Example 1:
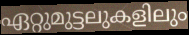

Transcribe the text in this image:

ഏറ്റുമുട്ടലുകളിലും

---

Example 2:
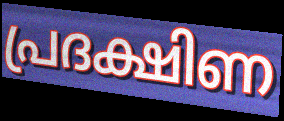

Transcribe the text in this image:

പ്രദക്ഷിണ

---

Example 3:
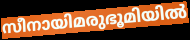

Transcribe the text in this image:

സീനായിമരുഭൂമിയിൽ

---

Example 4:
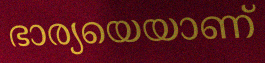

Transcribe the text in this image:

ഭാര്യയെയാണ്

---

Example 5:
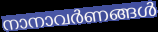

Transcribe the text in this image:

നാനാവർണങ്ങൾ